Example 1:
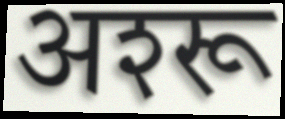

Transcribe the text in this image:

अश्रू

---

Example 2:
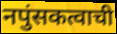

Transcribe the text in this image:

नपुंसकत्वाची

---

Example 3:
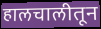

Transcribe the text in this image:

हालचालीतून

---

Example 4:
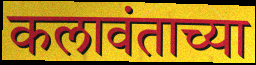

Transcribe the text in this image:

कलावंताच्या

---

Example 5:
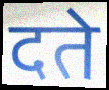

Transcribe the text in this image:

दते